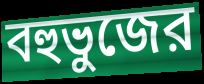
বহুভুজের